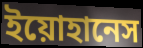
ইয়োহানেস